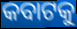
କବାଟକୁ